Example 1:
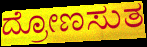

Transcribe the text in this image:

ದ್ರೋಣಸುತ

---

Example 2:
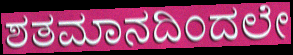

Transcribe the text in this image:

ಶತಮಾನದಿಂದಲೇ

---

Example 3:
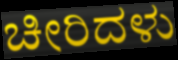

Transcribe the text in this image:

ಚೀರಿದಳು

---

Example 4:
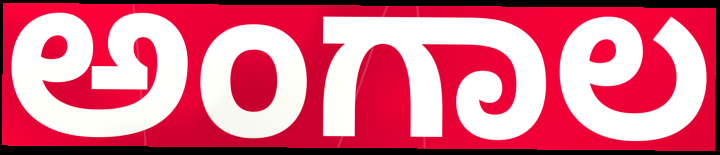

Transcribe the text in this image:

ಅಂಗಾಲ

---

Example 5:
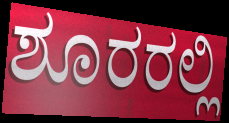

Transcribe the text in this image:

ಶೂರರಲ್ಲಿ